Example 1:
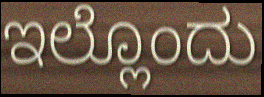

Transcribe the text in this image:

ಇಲ್ಲೊಂದು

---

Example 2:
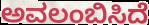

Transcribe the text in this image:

ಅವಲಂಬಿಸಿದೆ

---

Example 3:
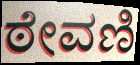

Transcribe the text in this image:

ಠೇವಣಿ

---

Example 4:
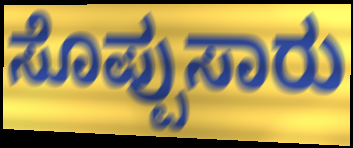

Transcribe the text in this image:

ಸೊಪ್ಪುಸಾರು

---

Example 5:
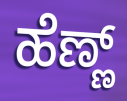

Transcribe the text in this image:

ಹೆಣ್ಣ್